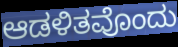
ಆಡಳಿತವೊಂದು